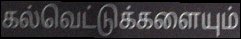
கல்வெட்டுக்களையும்